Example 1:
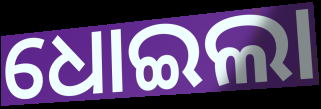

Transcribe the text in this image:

ଧୋଇଲା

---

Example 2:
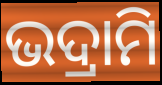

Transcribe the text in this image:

ଭଦ୍ରାମି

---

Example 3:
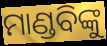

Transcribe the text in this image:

ମାଣ୍ଡବିଙ୍କୁ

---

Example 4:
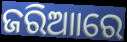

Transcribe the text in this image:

ଜରିଆାରେ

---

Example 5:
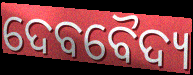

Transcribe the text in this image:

ଦେବବୈଦ୍ୟ